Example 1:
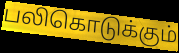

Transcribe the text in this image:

பலிகொடுக்கும்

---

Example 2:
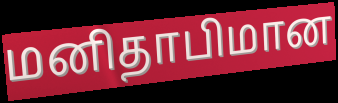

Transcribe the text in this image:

மனிதாபிமான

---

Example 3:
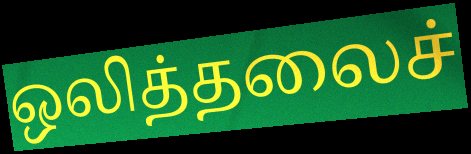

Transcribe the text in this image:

ஒலித்தலைச்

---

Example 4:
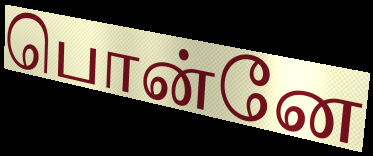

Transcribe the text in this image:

பொன்னே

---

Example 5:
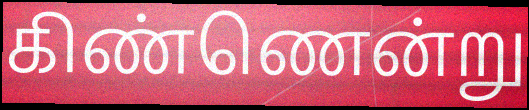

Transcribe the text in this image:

கிண்ணென்று